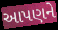
આપણને